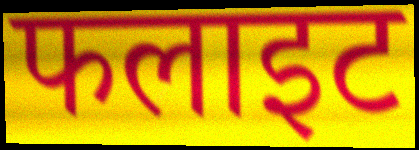
फलाइट